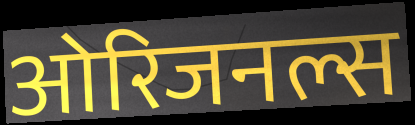
ओरिजनल्स